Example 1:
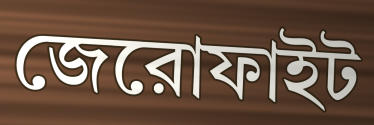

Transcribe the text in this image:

জেরোফাইট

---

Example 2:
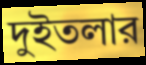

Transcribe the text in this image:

দুইতলার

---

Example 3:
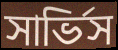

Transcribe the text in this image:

সার্ভিস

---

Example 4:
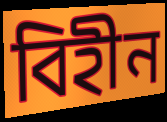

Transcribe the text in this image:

বিহীন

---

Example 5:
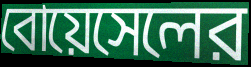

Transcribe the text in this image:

বোয়েসেলের